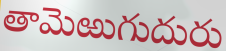
తామెఱుగుదురు